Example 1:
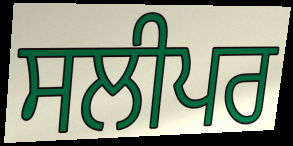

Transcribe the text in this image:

ਸਲੀਪਰ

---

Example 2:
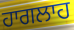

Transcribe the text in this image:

ਹਾਗਲਾਹ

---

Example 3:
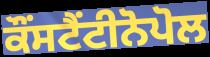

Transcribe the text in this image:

ਕੌਂਸਟੈਂਟੀਨੋਪੋਲ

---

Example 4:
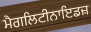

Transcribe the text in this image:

ਮੈਗਲਿਟੀਨਾਇਡਜ਼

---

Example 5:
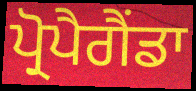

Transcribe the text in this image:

ਪ੍ਰੋਪੈਗੈਂਡਾ